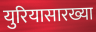
युरियासारख्या